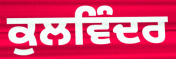
ਕੁਲਵਿੰਦਰ